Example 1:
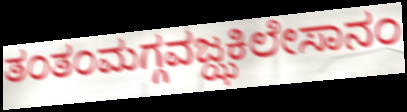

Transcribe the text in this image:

ತಂತಂಮಗ್ಗವಜ್ಝಕಿಲೇಸಾನಂ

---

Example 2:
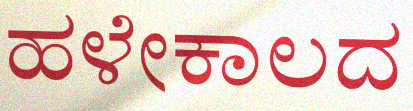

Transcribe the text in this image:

ಹಳೇಕಾಲದ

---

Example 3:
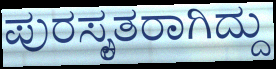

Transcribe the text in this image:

ಪುರಸ್ಕೃತರಾಗಿದ್ದು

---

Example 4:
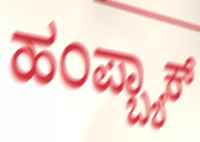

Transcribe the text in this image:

ಹಂಪ್ಬ್ಯಾಕ್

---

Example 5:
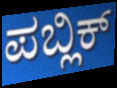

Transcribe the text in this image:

ಪಬ್ಲಿಕ್